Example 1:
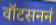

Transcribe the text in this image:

वॉटसननं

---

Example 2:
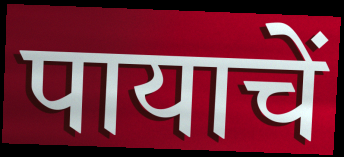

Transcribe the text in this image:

पायाचें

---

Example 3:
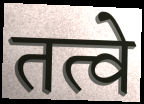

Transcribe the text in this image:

तत्वे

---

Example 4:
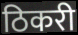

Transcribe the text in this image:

ठिकरी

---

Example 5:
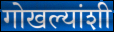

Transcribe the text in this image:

गोखल्यांशी